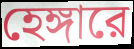
হেঙ্গারে